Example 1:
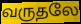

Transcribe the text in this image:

வருதலே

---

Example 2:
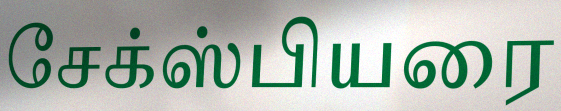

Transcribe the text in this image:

சேக்ஸ்பியரை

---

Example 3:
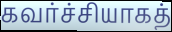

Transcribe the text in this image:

கவர்ச்சியாகத்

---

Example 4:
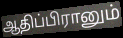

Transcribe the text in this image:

ஆதிப்பிரானும்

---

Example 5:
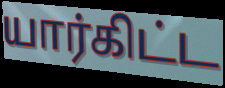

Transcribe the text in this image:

யார்கிட்ட